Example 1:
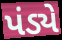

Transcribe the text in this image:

પંડ્યે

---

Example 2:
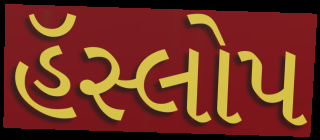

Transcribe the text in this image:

હૅસ્લોપ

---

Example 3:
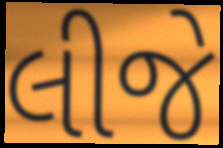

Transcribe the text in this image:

લીજે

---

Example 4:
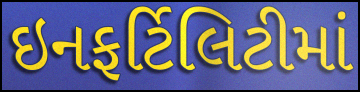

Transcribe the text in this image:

ઇનફર્ટિલિટીમાં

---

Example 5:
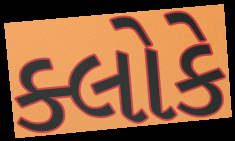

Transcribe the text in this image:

ક્લોકે